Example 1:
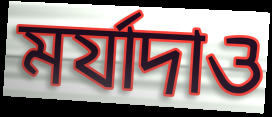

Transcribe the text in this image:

মর্যাদাও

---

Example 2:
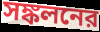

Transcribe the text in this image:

সঙ্কলনের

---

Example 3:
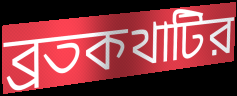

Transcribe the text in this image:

ব্রতকথাটির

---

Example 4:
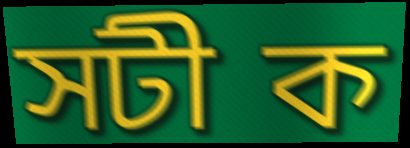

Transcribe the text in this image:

সটীক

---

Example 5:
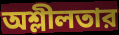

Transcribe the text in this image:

অশ্লীলতার